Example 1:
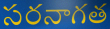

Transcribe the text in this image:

సరనాగత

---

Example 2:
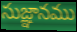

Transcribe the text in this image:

సుజ్ఞానము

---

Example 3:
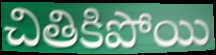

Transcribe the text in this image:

చితికిపోయి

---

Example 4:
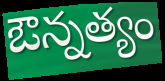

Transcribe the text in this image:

ఔన్నత్యం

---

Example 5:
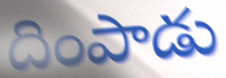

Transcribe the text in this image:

దింపాడు